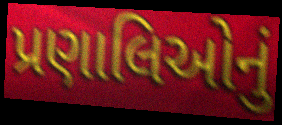
પ્રણાલિઓનું